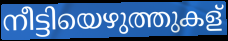
നീട്ടിയെഴുത്തുകള്